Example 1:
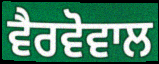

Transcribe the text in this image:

ਵੈਰਵੋਵਾਲ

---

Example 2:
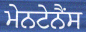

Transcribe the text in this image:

ਮੇਨਟੇਨੈਂਸ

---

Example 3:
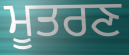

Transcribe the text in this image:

ਮੂਤਰਣ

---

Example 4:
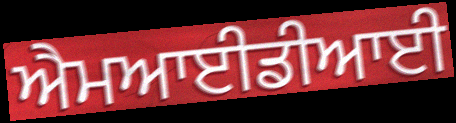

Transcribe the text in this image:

ਐਮਆਈਡੀਆਈ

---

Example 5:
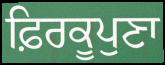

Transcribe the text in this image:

ਫ਼ਿਰਕੂਪੁਣਾ